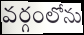
వర్గంలోను